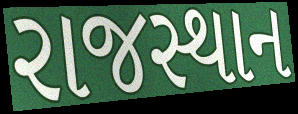
રાજસ્થાન